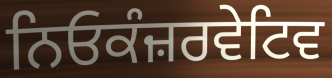
ਨਿਓਕੰਜ਼ਰਵੇਟਿਵ